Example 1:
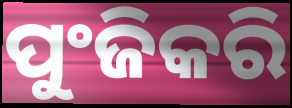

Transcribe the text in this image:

ପୁଂଜିକରି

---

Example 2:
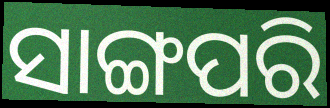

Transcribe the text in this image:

ସାଙ୍ଗପରି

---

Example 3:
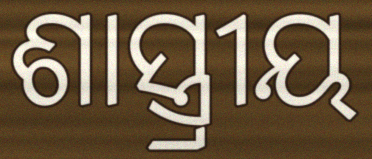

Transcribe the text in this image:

ଶାସ୍ତ୍ର୍ରୀୟ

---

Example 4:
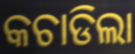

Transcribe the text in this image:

କଚାଡିଲା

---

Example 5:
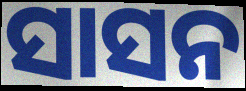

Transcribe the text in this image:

ସାସନ